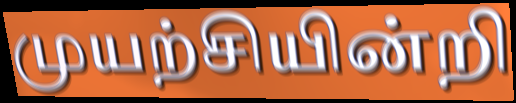
முயற்சியின்றி